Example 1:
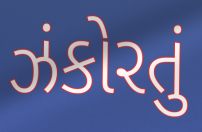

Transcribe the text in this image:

ઝંકોરતું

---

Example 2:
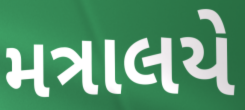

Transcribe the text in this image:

મત્રાલયે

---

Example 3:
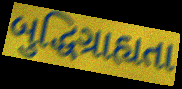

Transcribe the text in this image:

બુદ્ધિગ્રાહ્યતા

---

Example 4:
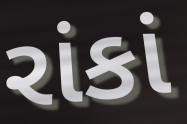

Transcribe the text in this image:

રાંકાં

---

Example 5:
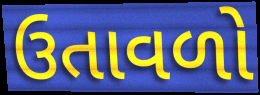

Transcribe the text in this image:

ઉતાવળો